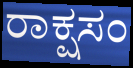
ರಾಕ್ಷಸಂ